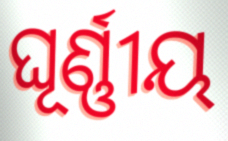
ଘୂର୍ଣ୍ଣୀୟ